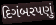
દિગંબરપણું